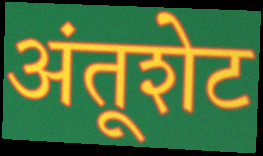
अंतूशेट